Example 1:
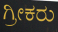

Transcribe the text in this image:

ಗ್ರೀಕರು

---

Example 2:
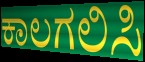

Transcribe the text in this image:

ಕಾಲಗಲಿಸಿ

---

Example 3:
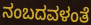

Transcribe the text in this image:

ನಂಬದವಳಂತೆ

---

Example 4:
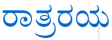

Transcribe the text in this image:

ರಾತ್ರರಯ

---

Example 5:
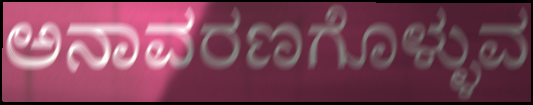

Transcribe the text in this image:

ಅನಾವರಣಗೊಳ್ಳುವ